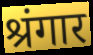
श्रंगार